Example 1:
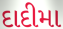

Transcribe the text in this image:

દાદીમા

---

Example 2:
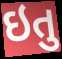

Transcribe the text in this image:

ઇતુ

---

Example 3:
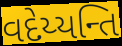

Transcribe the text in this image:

વદેય્યન્તિ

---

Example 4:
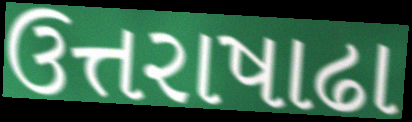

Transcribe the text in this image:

ઉત્તરાષાઢા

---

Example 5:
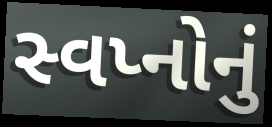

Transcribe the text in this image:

સ્વપ્નોનું